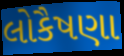
લોકૈષણા